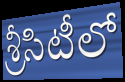
శ్రీసిటీలో